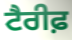
ਟੈਰੀਫ਼